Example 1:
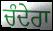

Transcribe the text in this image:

ਚੰਦੇਰਾ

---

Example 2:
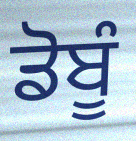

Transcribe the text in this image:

ਡੋਬੂੰ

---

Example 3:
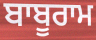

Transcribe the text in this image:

ਬਾਬੂਰਾਮ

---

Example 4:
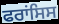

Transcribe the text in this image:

ਫਰਾਂਸਿਸ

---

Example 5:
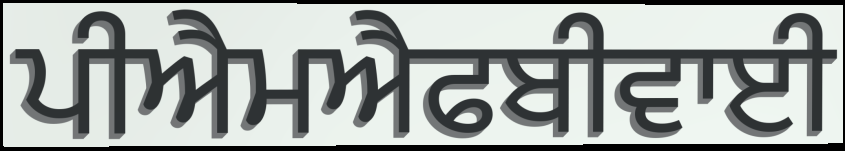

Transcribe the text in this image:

ਪੀਐਮਐਫਬੀਵਾਈ